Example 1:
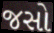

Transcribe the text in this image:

જસો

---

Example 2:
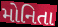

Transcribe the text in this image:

મોનિતા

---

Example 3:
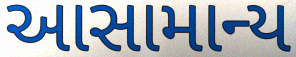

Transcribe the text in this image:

આસામાન્ય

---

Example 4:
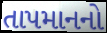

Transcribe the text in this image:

તાપમાનનો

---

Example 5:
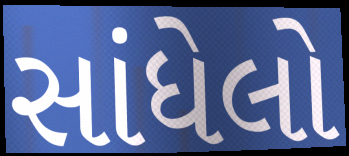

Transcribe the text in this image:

સાંધેલો